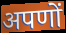
अपणों